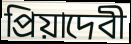
প্রিয়াদেবী